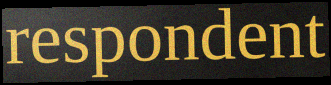
respondent